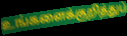
உங்களைக்குறித்துப்